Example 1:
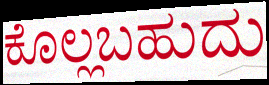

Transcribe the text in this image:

ಕೊಲ್ಲಬಹುದು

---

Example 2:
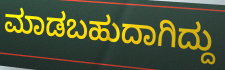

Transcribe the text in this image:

ಮಾಡಬಹುದಾಗಿದ್ದು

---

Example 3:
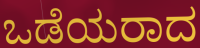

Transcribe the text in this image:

ಒಡೆಯರಾದ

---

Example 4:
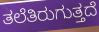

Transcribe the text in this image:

ತಲೆತಿರುಗುತ್ತದೆ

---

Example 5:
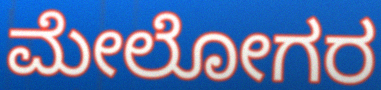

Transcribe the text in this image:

ಮೇಲೋಗರ